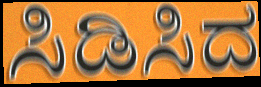
ಸಿಡಿಸಿದ